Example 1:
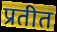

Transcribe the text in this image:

प्रतीत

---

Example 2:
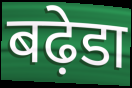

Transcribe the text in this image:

बढ़ेडा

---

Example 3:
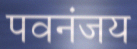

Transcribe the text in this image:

पवनंजय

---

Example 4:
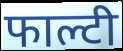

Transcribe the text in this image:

फाल्टी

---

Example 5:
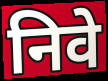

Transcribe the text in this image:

निवे